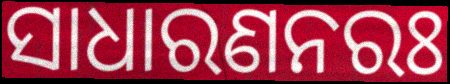
ସାଧାରଣନରଃ